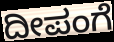
ದೀಪಂಗೆ